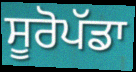
ਸੂਰੋਪੱਡਾ